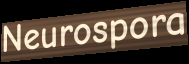
Neurospora